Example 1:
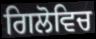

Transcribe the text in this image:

ਗਿਲੋਵਿਚ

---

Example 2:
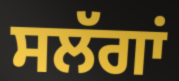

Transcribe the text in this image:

ਸਲੱਗਾਂ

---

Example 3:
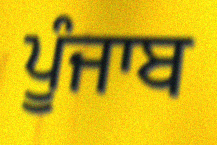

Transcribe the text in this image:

ਪੂੰਜਾਬ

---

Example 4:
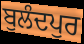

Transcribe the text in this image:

ਬੁਲੰਦਪੁਰ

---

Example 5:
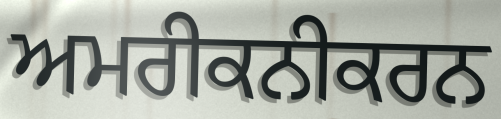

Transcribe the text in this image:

ਅਮਰੀਕਨੀਕਰਨ